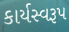
કાર્યસ્વરૂપ